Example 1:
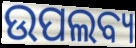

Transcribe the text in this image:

ଉପଲବ୍ୟ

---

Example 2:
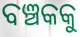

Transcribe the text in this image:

ବଞ୍ଚକକୁ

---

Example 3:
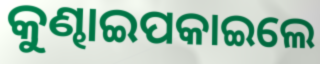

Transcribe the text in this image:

କୁଣ୍ଢାଇପକାଇଲେ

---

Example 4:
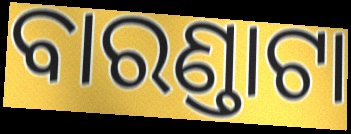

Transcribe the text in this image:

ବାରଣ୍ଡାଟା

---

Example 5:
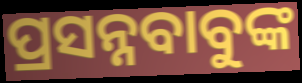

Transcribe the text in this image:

ପ୍ରସନ୍ନବାବୁଙ୍କ